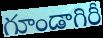
గూండాగిరీ